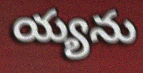
య్యను